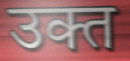
उक्‍त